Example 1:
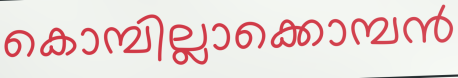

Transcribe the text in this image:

കൊമ്പില്ലാക്കൊമ്പൻ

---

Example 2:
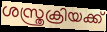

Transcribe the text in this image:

ശസ്ത്രക്രിയക്ക്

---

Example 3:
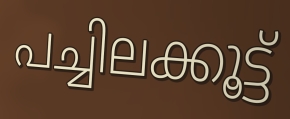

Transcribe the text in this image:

പച്ചിലക്കൂട്ട്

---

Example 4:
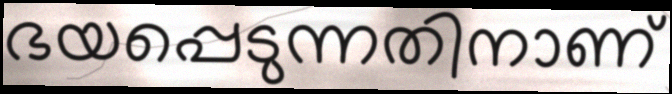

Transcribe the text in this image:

ഭയപ്പെടുന്നതിനാണ്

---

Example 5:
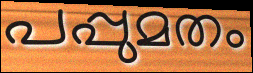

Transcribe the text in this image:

പപ്പുമതം